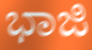
ಭಾಜಿ